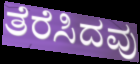
ತೆರೆಸಿದವು